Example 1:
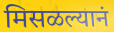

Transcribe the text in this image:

मिसळल्यानं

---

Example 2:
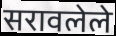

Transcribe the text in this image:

सरावलेले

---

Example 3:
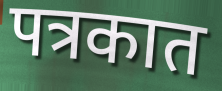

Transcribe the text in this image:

पत्रकात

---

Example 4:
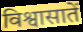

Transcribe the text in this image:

विश्वासातें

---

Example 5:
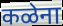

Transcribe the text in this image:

कळेना